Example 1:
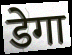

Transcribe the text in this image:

डेगा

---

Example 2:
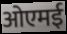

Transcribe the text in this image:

ओएमई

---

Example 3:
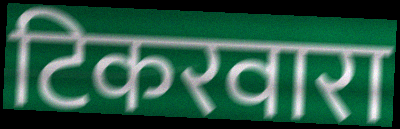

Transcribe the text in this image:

टिकरवारा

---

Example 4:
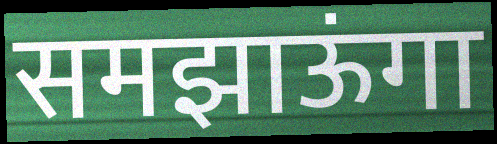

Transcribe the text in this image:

समझाऊंगा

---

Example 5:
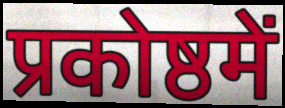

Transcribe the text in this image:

प्रकोष्ठमें